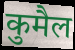
कुमैल